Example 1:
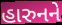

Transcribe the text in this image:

હારુનને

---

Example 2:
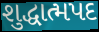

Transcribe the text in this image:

શુદ્ધાત્મપદ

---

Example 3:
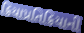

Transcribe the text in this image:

ક્રિયાપ્રતિક્રિયાની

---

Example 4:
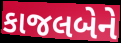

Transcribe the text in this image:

કાજલબેને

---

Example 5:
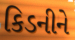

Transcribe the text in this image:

કિડનીને